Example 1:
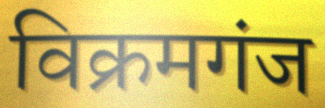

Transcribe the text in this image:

विक्रमगंज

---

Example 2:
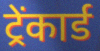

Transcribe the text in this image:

ट्रेंकार्ड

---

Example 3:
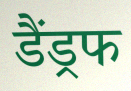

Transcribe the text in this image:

डैंड्रफ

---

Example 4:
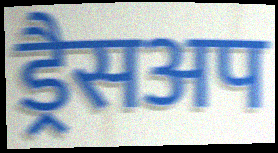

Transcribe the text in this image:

ड्रैसअप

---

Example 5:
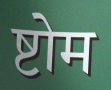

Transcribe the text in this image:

ष्टोम